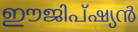
ഈജിപ്ഷ്യൻ